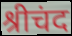
श्रीचंद